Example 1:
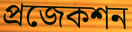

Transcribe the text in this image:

প্রজেকশন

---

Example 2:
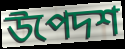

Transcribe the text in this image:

উপেদশ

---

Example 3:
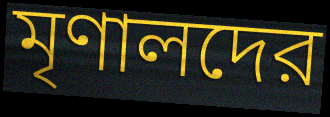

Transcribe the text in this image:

মৃণালদের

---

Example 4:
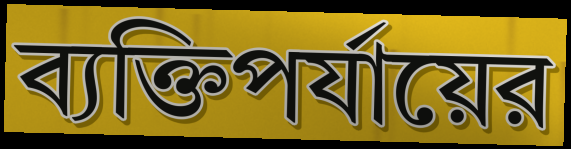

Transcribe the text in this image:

ব্যক্তিপর্যায়ের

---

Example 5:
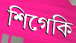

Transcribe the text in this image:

শিগেকি